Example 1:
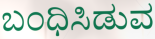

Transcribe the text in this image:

ಬಂಧಿಸಿಡುವ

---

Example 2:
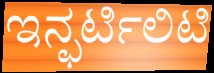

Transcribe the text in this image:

ಇನ್ಫರ್ಟಿಲಿಟಿ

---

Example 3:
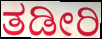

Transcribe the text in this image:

ತಡೀರಿ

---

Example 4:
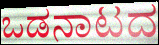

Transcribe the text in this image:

ಒಡನಾಟದ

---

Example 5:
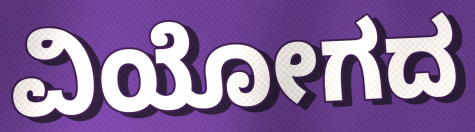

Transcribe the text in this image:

ವಿಯೋಗದ